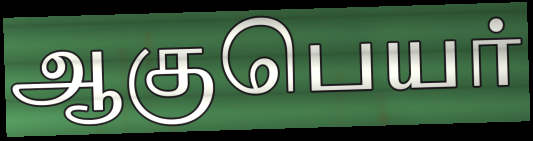
ஆகுபெயர்